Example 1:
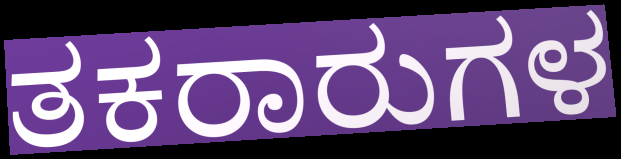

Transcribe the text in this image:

ತಕರಾರುಗಳ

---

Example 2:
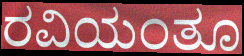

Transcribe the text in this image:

ರವಿಯಂತೂ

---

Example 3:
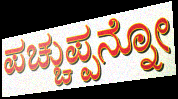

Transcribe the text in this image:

ಪಚ್ಚುಪ್ಪನ್ನೋ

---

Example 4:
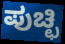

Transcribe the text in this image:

ಪುಚ್ಛಿ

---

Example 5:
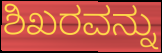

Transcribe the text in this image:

ಶಿಖರವನ್ನು